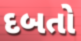
દબતો